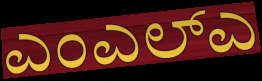
ಎಂಎಲ್ಎ